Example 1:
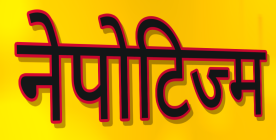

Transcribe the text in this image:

नेपोटिज्म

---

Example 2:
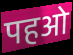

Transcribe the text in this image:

पहओ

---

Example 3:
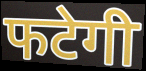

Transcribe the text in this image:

फटेगी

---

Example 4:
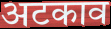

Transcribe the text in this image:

अटकाव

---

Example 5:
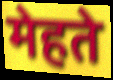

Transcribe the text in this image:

मेहते